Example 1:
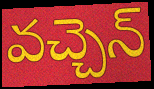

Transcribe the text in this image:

వచ్చెన్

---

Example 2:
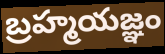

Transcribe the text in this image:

బ్రహ్మయజ్ఞం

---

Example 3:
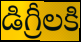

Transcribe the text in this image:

డిగ్రీలకి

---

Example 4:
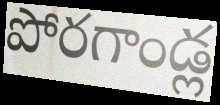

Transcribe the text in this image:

పోరగాండ్ల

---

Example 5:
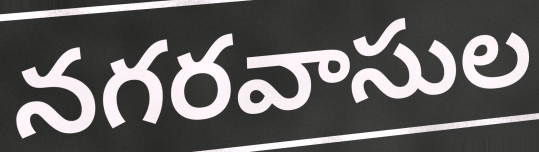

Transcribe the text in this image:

నగరవాసుల